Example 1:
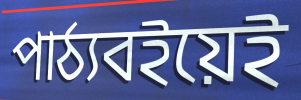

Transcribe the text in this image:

পাঠ্যবইয়েই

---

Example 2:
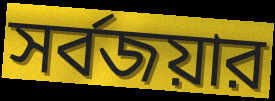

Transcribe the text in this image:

সর্বজয়ার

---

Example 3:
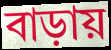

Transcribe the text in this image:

বাড়ায়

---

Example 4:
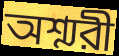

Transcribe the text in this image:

অশ্মরী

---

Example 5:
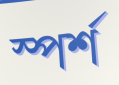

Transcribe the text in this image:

স্পর্শ